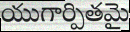
యుగార్పితమై